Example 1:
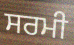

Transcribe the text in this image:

ਸਰਮੀ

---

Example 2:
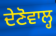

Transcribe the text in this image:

ਦੇਣੋਵਾਲ੍ਹ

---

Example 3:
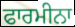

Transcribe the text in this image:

ਫਾਰਮੀਨਾ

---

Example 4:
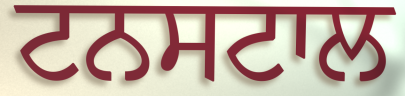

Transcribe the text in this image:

ਟਨਸਟਾਲ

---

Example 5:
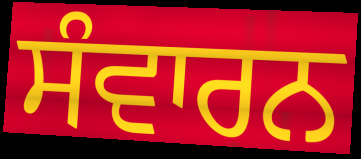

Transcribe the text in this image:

ਸੰਵਾਰਨ